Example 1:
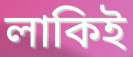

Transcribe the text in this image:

লাকিই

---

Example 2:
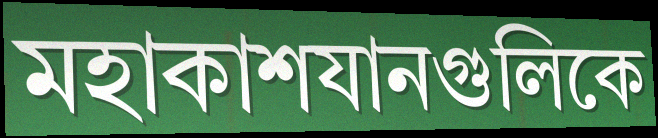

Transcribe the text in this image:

মহাকাশযানগুলিকে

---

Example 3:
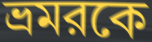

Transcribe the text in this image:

ভ্রমরকে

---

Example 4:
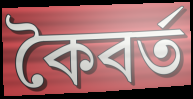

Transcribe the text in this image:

কৈবর্ত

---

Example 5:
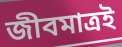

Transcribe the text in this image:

জীবমাত্রই